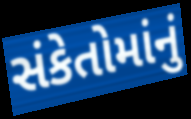
સંકેતોમાંનું